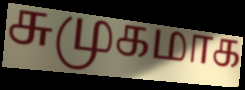
சுமுகமாக